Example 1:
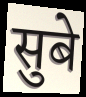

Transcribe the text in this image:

सुबे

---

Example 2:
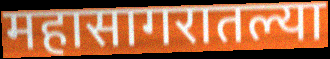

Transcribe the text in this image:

महासागरातल्या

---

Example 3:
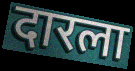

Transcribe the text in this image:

दारला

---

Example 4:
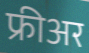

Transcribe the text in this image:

फ्रीअर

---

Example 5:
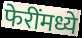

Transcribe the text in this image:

फेरींमध्ये